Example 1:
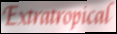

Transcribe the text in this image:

Extratropical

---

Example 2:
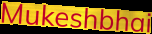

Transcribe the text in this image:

Mukeshbhai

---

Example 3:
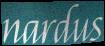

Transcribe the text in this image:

nardus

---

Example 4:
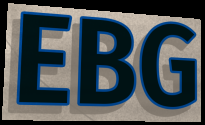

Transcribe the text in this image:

EBG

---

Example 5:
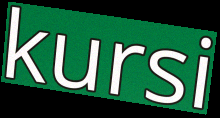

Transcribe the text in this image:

kursi